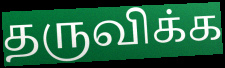
தருவிக்க